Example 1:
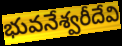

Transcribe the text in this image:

భువనేశ్వరీదేవి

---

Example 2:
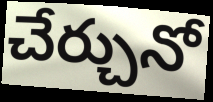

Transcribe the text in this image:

చేర్చునో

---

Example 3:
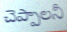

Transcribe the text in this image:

చెప్పాలనీ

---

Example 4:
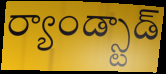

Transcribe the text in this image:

ర్యాండ్స్టాడ్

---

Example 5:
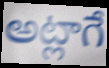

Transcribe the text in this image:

అట్లాగే